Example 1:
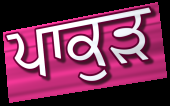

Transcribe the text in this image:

ਪਾਕੁੜ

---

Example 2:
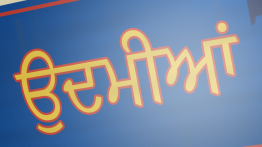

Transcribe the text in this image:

ਉਦਮੀਆਂ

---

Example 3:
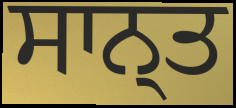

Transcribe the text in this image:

ਸਾਨ੍ਤ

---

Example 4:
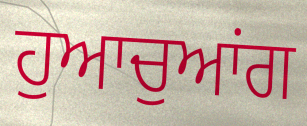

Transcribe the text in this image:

ਹੁਆਚੁਆਂਗ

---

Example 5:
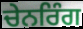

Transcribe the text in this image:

ਚੇਨਰਿੰਗ